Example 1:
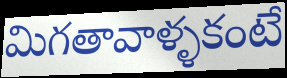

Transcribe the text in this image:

మిగతావాళ్ళకంటే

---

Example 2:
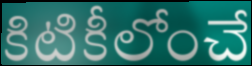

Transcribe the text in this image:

కిటికీలోంచే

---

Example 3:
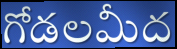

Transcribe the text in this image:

గోడలమీద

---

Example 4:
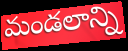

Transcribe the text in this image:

మండలాన్ని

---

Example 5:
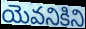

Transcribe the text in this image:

యెవనికిని